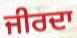
ਜੀਰਦਾ